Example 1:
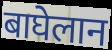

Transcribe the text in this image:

बाघेलान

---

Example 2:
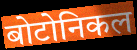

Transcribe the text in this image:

बोटोनिकल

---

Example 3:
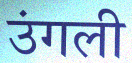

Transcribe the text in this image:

उंगली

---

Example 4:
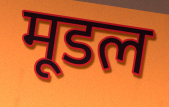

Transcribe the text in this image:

मूडल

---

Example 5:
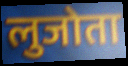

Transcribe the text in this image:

लुजोता